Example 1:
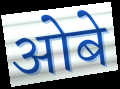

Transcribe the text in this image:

ओबे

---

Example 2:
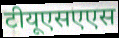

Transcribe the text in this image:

टीयूएसएएस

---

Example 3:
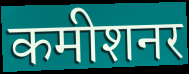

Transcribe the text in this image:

कमीशनर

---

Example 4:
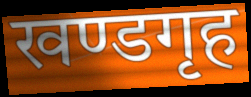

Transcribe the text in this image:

खण्डगृह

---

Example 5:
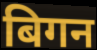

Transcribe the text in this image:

बिगन